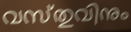
വസ്‌തുവിനും